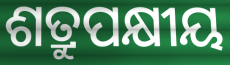
ଶତ୍ରୁପକ୍ଷୀୟ